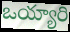
ఒయ్యారి